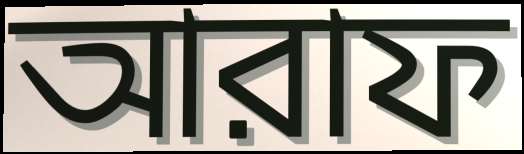
আরাফ